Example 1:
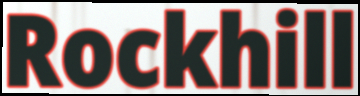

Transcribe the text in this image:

Rockhill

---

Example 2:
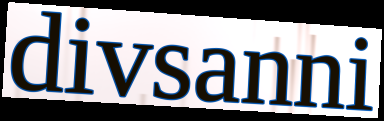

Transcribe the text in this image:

divsanni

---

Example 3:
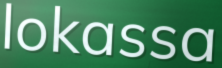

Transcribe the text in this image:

lokassa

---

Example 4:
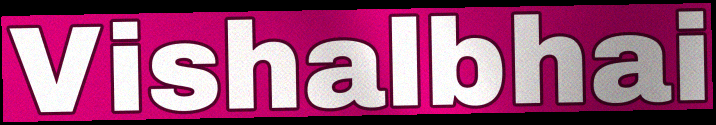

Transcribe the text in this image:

Vishalbhai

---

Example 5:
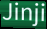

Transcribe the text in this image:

Jinji